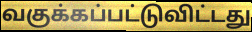
வகுக்கப்பட்டுவிட்டது